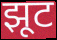
झूट